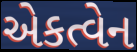
એકત્વેન